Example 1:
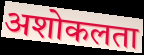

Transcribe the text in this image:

अशोकलता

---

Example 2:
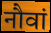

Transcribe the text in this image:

नौवां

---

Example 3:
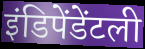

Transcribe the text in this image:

इंडिपेंडेंटली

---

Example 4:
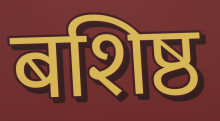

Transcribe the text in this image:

बशिष्ठ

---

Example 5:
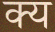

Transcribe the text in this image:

क्य